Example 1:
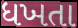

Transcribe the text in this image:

ધખતા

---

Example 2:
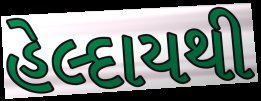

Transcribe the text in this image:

હેલ્દાયથી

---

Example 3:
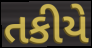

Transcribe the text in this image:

તકીયે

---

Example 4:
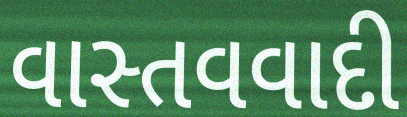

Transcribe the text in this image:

વાસ્તવવાદી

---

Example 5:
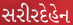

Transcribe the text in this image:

સરીરદેહેન